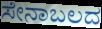
ಸೇನಾಬಲದ